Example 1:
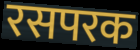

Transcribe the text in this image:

रसपरक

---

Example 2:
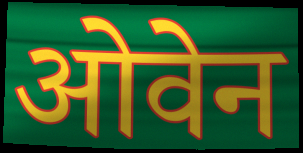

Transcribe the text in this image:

ओवेन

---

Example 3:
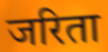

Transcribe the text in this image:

जरिता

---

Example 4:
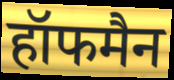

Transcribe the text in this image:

हॉफमैन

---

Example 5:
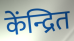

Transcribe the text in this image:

केंन्द्रित